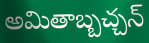
అమితాబ్బచ్చన్